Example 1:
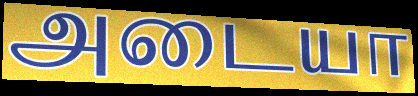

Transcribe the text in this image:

அடையா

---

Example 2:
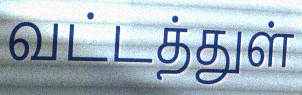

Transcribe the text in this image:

வட்டத்துள்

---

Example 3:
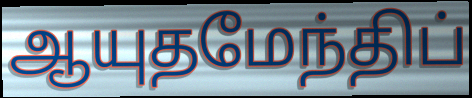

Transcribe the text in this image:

ஆயுதமேந்திப்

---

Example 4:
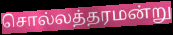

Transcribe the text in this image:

சொல்லத்தரமன்று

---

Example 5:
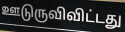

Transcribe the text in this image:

ஊடுருவிவிட்டது